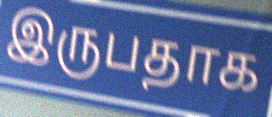
இருபதாக